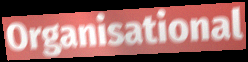
Organisational